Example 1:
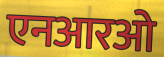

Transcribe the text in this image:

एनआरओ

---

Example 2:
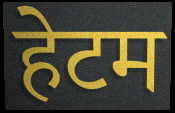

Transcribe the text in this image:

हेटम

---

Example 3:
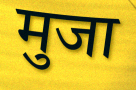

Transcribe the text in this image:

मुजा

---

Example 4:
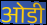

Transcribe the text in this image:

ओडी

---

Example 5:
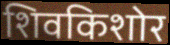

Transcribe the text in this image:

शिवकिशोर